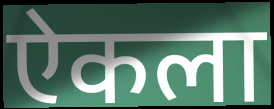
ऐकला